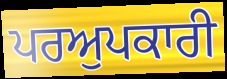
ਪਰਅੁਪਕਾਰੀ